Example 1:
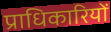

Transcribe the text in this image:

प्राधिकारियों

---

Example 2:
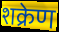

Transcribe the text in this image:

शक्रेण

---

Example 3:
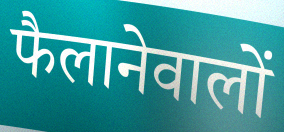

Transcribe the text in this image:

फैलानेवालों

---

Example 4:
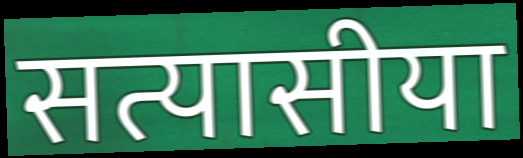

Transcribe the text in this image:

सत्यासीया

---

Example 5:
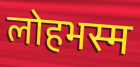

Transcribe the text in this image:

लोहभस्म